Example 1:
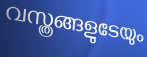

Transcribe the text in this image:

വസ്ത്രങ്ങളുടേയും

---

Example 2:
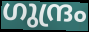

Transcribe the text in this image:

ഗുന്ദ്രം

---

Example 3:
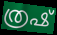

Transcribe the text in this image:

ത്രഷ്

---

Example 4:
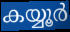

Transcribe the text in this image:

കയ്യൂർ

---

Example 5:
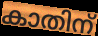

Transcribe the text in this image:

കാതിന്